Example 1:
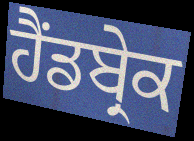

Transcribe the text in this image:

ਹੈਂਡਬ੍ਰੇਕ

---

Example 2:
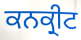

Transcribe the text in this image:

ਕਨਕ੍ਰੀਟ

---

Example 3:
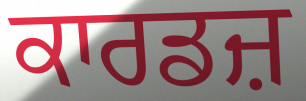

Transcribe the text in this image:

ਕਾਰਡਜ਼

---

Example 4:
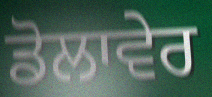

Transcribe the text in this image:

ਡੋਲਾਵੇਰ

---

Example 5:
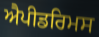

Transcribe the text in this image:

ਐਪੀਡਰਿਮਸ